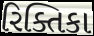
રિક્તિકા